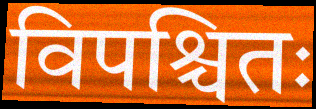
विपश्चितः